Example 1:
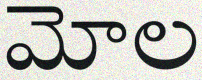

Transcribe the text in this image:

మోల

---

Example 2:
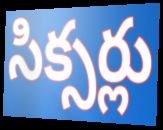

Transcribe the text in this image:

సిక్సర్లు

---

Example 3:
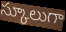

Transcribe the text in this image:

స్కూలుగా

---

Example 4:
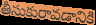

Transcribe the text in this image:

తీసుకురావడానికి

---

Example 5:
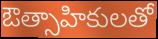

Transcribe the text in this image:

ఔత్సాహికులతో